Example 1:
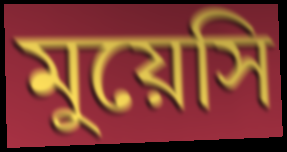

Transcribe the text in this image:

মুয়েসি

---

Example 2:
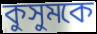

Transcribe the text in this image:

কুসুমকে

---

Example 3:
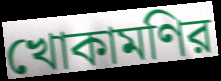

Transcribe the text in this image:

খোকামণির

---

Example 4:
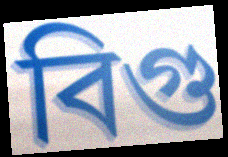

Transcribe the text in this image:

বিগু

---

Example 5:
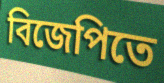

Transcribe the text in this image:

বিজেপিতে